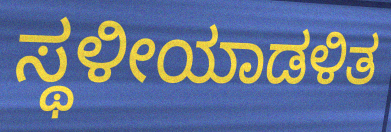
ಸ್ಥಳೀಯಾಡಳಿತ